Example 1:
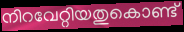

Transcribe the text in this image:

നിറവേറ്റിയതുകൊണ്ട്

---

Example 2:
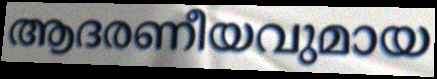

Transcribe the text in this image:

ആദരണീയവുമായ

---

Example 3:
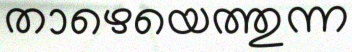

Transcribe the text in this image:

താഴെയെത്തുന്ന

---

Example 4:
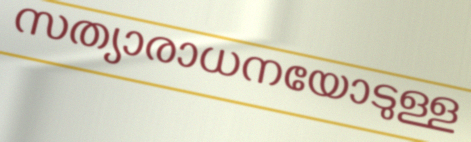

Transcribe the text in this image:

സത്യാരാധനയോടുള്ള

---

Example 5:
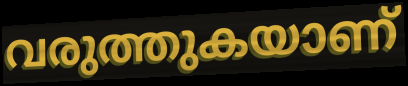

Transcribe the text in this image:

വരുത്തുകയാണ്